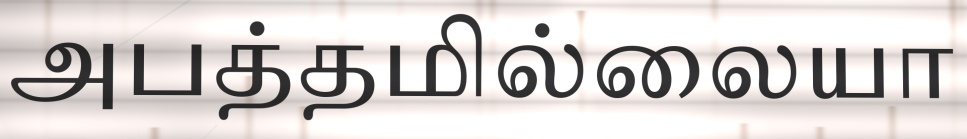
அபத்தமில்லையா